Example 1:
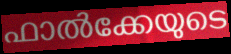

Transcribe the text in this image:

ഫാൽക്കേയുടെ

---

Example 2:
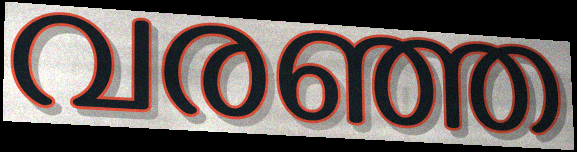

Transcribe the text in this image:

വരഞ്ഞ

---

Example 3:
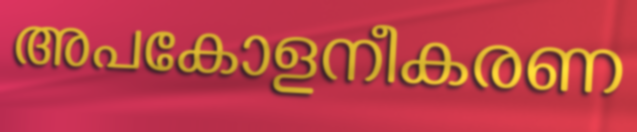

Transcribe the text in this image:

അപകോളനീകരണ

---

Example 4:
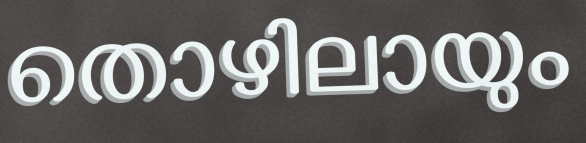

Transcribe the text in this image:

തൊഴിലായും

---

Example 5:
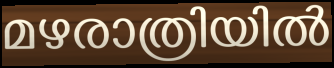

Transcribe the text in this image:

മഴരാത്രിയിൽ